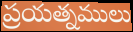
ప్రయత్నములు